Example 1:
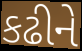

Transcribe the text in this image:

કઢીને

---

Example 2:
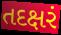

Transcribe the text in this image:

તદક્ષરં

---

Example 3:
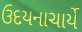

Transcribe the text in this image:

ઉદયનાચાર્યે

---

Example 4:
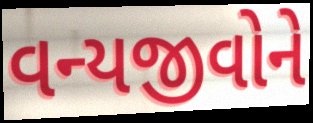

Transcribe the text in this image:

વન્યજીવોને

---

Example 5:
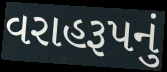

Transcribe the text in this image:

વરાહરૂપનું